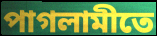
পাগলামীতে